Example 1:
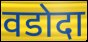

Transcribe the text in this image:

वडोदा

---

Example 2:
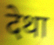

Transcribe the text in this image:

देथा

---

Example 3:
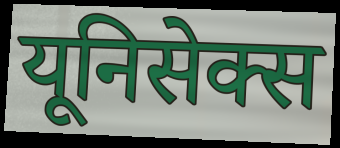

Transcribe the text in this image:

यूनिसेक्स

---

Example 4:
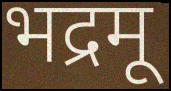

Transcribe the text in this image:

भद्रमू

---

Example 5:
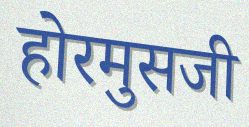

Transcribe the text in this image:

होरमुसजी